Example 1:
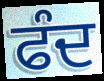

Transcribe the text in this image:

ਫੰਦ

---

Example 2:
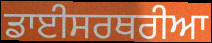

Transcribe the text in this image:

ਡਾਈਸਰਥਰੀਆ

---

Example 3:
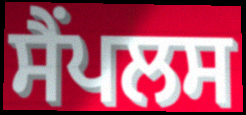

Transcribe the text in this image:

ਸੈਂਪਲਸ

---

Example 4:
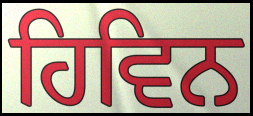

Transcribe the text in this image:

ਹਿਵਿਨ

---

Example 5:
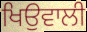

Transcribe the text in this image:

ਖਿਉਵਾਲੀ